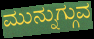
ಮುನ್ನುಗ್ಗುವ